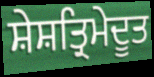
ਸ਼ੇਸ਼ਤ੍ਰਿਮੇਦੂਤ